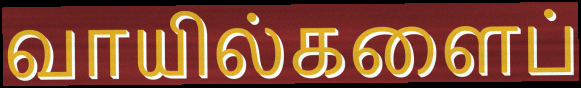
வாயில்களைப்